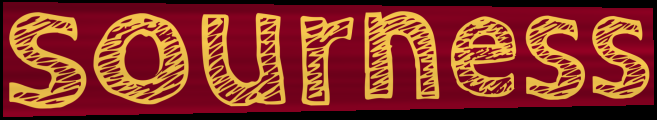
sourness